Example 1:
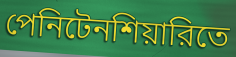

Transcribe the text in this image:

পেনিটেনশিয়ারিতে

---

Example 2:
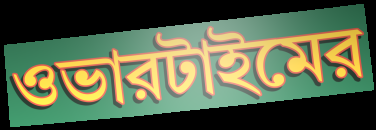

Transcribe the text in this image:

ওভারটাইমের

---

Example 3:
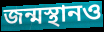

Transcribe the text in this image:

জন্মস্থানও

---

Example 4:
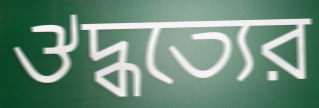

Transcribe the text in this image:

ঔদ্ধত্যের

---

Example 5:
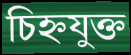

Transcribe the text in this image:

চিহ্নযুক্ত